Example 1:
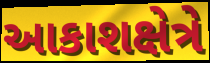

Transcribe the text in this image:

આકાશક્ષેત્રે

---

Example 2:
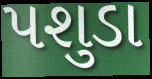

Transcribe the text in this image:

પશુડા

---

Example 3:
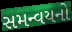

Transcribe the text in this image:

સમન્વયનો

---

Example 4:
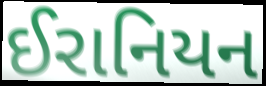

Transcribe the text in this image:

ઈરાનિયન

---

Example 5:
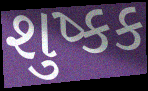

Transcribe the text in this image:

શુષ્કક